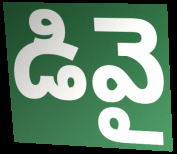
డివై